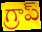
గ్రాప్